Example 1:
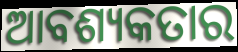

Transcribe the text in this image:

ଆବଶ୍ୟକତାର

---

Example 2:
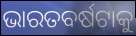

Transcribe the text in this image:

ଭାରତବର୍ଷଟାକୁ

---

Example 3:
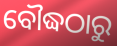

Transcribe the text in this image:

ବୌଦ୍ଧଠାରୁ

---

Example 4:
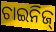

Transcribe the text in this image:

ଚାଇନିଜ୍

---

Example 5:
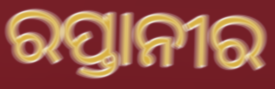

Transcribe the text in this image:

ରପ୍ତାନୀର